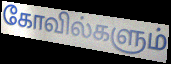
கோவில்களும்